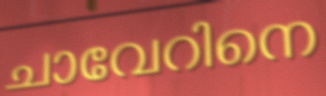
ചാവേറിനെ